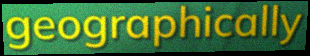
geographically